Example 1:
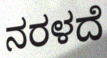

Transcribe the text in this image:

ನರಳದೆ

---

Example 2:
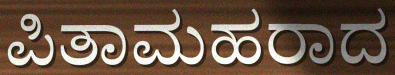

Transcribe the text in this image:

ಪಿತಾಮಹರಾದ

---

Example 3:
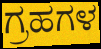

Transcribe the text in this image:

ಗ್ರಹಗಳ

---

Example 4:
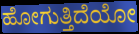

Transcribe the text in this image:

ಹೋಗುತ್ತಿದೆಯೋ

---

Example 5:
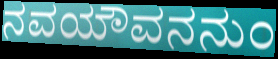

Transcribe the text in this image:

ನವಯೌವನನುಂ